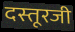
दस्तूरजी